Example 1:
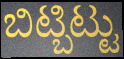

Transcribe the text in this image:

ಬಿಟ್ಬಿಟ್ಟು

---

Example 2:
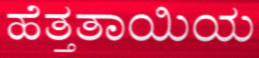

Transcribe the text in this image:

ಹೆತ್ತತಾಯಿಯ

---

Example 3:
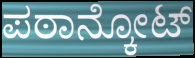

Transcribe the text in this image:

ಪಠಾನ್ಕೋಟ್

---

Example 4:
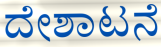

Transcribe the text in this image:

ದೇಶಾಟನೆ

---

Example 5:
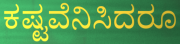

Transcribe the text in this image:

ಕಷ್ಟವೆನಿಸಿದರೂ